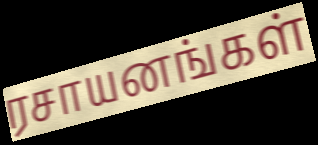
ரசாயனங்கள்